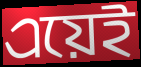
এয়েই